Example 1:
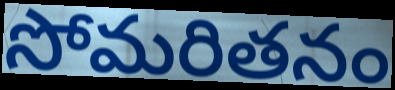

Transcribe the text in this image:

సోమరితనం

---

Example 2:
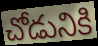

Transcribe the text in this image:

చోడునికి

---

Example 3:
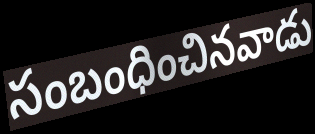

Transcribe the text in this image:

సంబంధించినవాడు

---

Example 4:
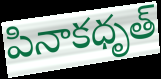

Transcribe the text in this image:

పినాకధృత్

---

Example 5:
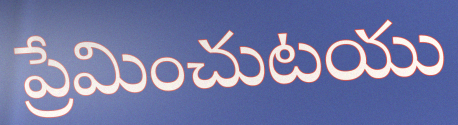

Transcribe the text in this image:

ప్రేమించుటయు